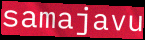
samajavu